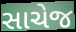
સાચેજ